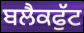
ਬਲੈਕਫੁੱਟ